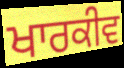
ਖਾਰਕੀਵ